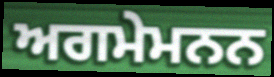
ਅਗਮੇਮਨਨ